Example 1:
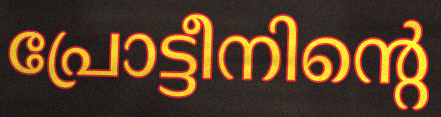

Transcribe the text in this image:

പ്രോട്ടീനിന്റെ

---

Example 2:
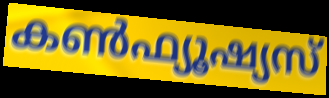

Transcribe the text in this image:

കൺഫ്യൂഷ്യസ്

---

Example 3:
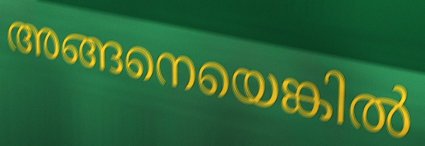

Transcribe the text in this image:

അങ്ങനെയെങ്കിൽ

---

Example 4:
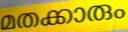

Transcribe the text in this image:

മതക്കാരും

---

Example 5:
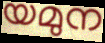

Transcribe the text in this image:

യമുന